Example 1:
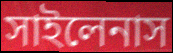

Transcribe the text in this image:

সাইলেনাস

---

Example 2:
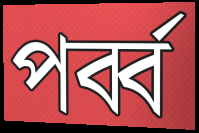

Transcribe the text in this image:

পর্ব্ব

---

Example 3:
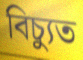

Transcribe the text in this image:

বিচ্যুত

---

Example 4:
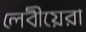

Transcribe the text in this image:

লেবীয়েরা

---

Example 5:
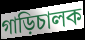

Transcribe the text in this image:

গাড়িচালক